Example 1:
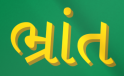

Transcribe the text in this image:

ભ્રાંત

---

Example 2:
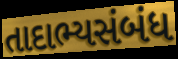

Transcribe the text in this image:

તાદાભ્યસંબંધ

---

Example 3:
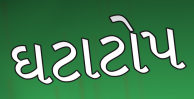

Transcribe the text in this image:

ઘટાટોપ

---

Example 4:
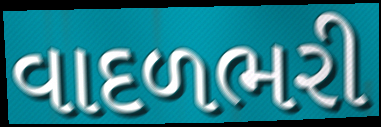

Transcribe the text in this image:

વાદળભરી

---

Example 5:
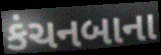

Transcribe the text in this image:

કંચનબાના